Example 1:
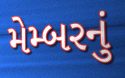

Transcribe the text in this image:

મેમ્બરનું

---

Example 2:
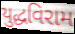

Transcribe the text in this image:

યુદ્ધવિરામ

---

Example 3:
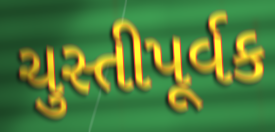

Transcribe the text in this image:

ચુસ્તીપૂર્વક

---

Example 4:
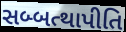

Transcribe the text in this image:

સબ્બત્થાપીતિ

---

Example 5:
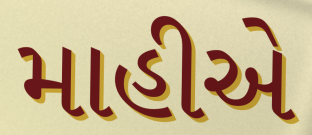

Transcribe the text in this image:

માહીએ